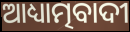
ଆଧ୍ୟାତ୍ମବାଦୀ